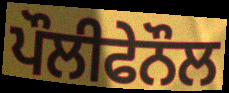
ਪੌਲੀਫੇਨੌਲ